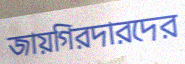
জায়গিরদারদের